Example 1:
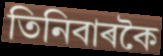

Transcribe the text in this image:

তিনিবাৰকৈ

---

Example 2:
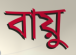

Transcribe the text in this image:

বায়ু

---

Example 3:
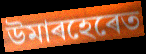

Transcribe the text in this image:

উমাৰহেৰেত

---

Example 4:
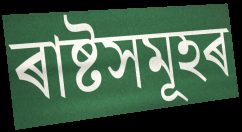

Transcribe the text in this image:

ৰাষ্টসমূহৰ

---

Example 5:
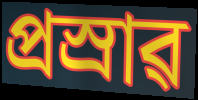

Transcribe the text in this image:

প্ৰস্ৰাৱ